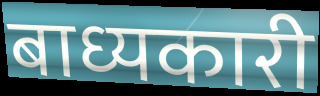
बाध्‍यकारी